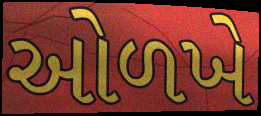
ઓળખે